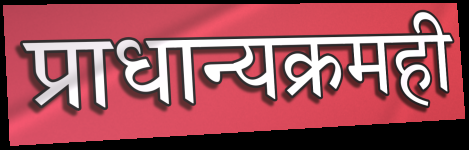
प्राधान्यक्रमही